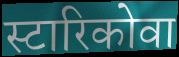
स्टारिकोवा